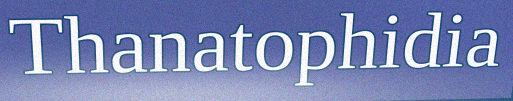
Thanatophidia